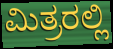
ಮಿತ್ರರಲ್ಲಿ